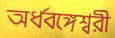
অর্ধবঙ্গেশ্বরী